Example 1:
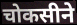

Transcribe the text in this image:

चोकसीने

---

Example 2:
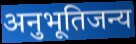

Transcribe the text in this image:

अनुभूतिजन्य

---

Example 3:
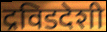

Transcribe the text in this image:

द्रविडदेशी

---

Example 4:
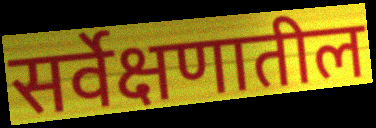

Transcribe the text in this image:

सर्वेक्षणातील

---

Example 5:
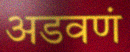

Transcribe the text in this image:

अडवणं